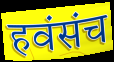
हवंसंच